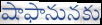
షాఫానునకు